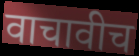
वाचावीच